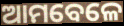
ଆମବେଳେ